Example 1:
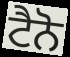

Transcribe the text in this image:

ਟੈਨੋ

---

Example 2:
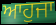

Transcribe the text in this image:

ਆਹੁਜਾ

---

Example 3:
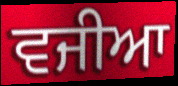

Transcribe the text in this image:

ਵਜੀਆ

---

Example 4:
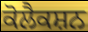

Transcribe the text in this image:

ਕੋਲੈਕਸ਼ਨ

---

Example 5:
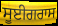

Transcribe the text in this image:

ਸੂਈਗਰਾਸ